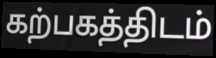
கற்பகத்திடம்